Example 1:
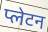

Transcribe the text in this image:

प्लेटन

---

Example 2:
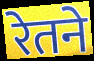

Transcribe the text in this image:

रेतने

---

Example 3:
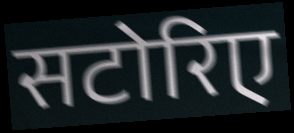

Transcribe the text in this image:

सटोरिए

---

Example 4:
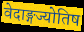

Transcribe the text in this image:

वेदाङ्गज्योतिष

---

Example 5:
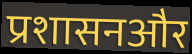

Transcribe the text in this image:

प्रशासनऔर